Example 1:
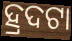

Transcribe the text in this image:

ହ୍ରଦଟା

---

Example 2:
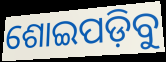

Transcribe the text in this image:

ଶୋଇପଡ଼ିବୁ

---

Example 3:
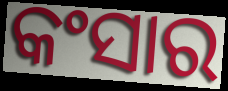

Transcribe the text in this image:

କଂସାର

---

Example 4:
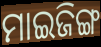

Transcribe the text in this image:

ମାଇଜିଙ୍ଗ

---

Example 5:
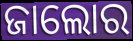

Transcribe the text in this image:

ଜାଲୋର